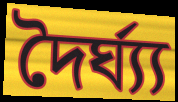
দৈৰ্ঘ্য্য